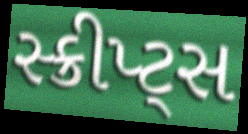
સ્ક્રીપ્ટ્સ